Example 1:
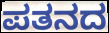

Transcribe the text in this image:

ಪತನದ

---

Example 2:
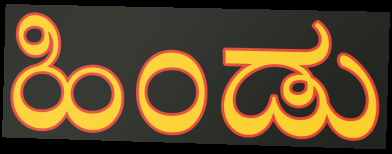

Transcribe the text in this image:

ಹಿಂಡು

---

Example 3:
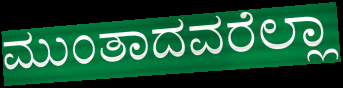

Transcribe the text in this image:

ಮುಂತಾದವರೆಲ್ಲಾ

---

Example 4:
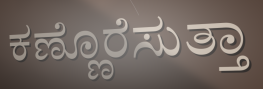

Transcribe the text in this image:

ಕಣ್ಣೊರೆಸುತ್ತಾ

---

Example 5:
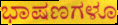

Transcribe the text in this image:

ಭಾಷಣಗಳೂ